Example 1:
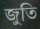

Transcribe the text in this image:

জুতি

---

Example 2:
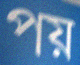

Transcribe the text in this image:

পয়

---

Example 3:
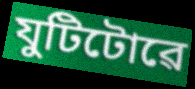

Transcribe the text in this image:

যুটিটোৱে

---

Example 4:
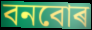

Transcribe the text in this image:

বনবোৰ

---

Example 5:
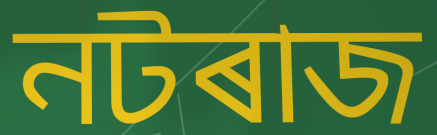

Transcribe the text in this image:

নটৰাজ